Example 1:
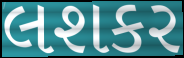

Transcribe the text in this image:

લશકર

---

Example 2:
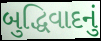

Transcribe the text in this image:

બુદ્ધિવાદનું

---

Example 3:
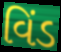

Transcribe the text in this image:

વિંડ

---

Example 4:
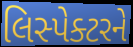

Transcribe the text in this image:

લિસ્પેક્ટરને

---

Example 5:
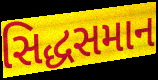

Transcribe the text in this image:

સિદ્ધસમાન